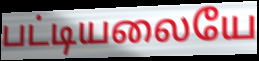
பட்டியலையே